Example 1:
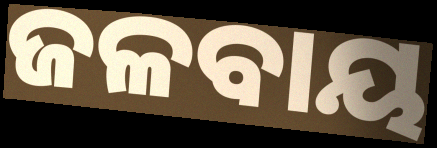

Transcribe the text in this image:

ଜଳବାୟ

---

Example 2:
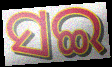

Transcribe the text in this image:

ସଇ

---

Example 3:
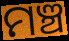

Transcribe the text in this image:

ମଞ୍ଚ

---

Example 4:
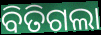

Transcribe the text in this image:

ବିତିଗଲା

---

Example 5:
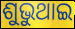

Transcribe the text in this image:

ଶୁଭୁଥାଇ